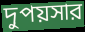
দুপয়সার